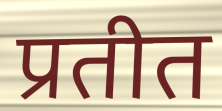
प्रतीत